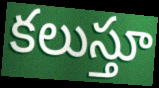
కలుస్తూ